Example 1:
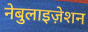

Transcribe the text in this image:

नेबुलाइज़ेशन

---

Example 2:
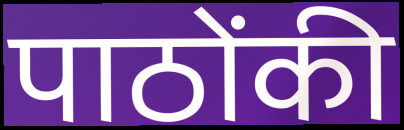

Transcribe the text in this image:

पाठोंकी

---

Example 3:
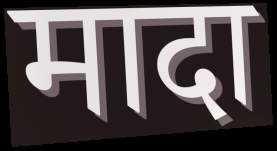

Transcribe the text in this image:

मादा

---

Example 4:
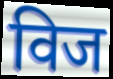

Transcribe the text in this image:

विज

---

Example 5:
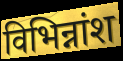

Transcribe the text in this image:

विभिन्नांश